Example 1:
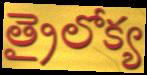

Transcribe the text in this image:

త్రైలోక్య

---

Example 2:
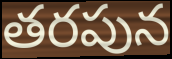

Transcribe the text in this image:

తరపున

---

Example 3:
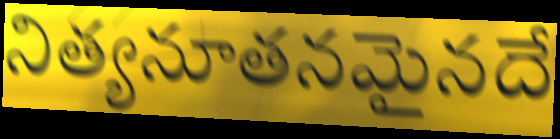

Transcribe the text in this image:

నిత్యనూతనమైనదే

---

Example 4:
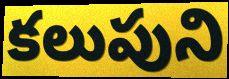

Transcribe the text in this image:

కలుపుని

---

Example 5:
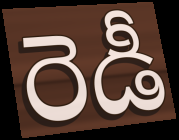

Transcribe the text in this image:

రెడీ